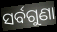
ସର୍ବଗୁଣା